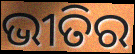
ଭୀତିର